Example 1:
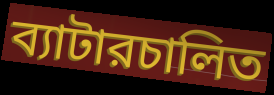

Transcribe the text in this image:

ব্যাটারচালিত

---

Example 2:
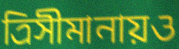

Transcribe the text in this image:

ত্রিসীমানায়ও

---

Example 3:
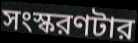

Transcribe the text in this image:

সংস্করণটার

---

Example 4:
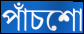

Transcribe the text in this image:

পাঁচশো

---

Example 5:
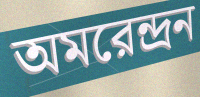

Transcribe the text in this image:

অমরেন্দ্রন